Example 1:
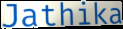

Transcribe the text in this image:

Jathika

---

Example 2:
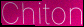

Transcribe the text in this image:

Chiton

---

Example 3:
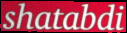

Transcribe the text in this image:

shatabdi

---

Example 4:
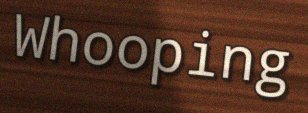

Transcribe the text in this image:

Whooping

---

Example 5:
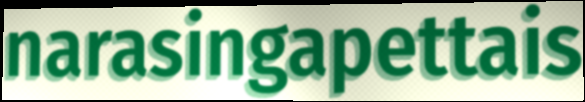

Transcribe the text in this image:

narasingapettais